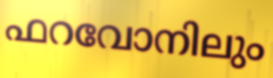
ഫറവോനിലും